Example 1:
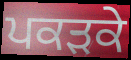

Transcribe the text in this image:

ਪਕੜਕੇ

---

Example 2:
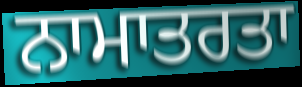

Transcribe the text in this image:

ਨਾਮਾਤਰਤਾ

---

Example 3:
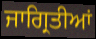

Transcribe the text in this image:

ਜਾਗ੍ਰਿਤੀਆਂ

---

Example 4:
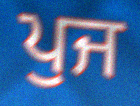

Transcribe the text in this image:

ਪੁਜ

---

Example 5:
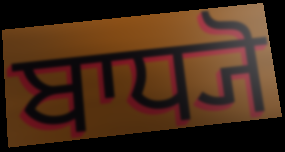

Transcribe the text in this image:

ਬਾਧ੍ਯੋ